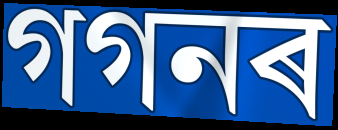
গগনৰ